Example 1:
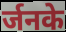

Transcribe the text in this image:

र्जनके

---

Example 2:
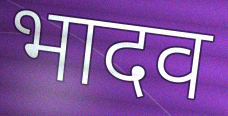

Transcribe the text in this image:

भादव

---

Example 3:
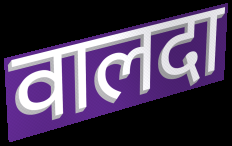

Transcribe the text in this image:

वालदा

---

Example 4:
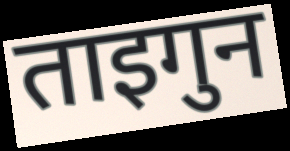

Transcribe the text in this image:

ताइगुन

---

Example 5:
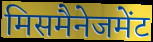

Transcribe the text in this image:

मिसमैनेजमेंट